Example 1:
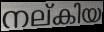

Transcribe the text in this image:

നല്‌കിയ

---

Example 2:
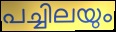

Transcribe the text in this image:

പച്ചിലയും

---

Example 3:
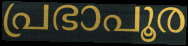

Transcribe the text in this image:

പ്രഭാപൂര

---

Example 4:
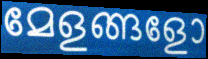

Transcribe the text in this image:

മേളങ്ങളോ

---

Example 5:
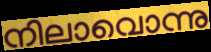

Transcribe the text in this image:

നിലാവൊന്നു